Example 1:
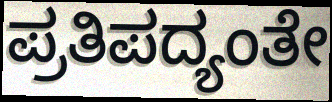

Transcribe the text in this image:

ಪ್ರತಿಪದ್ಯಂತೇ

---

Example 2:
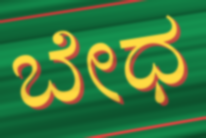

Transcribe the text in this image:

ಬೇಧ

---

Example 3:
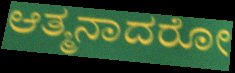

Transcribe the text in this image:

ಆತ್ಮನಾದರೋ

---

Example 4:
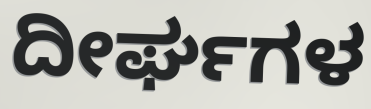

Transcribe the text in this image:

ದೀರ್ಘಗಳ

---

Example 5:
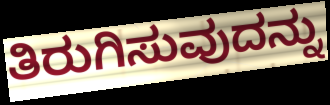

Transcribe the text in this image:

ತಿರುಗಿಸುವುದನ್ನು